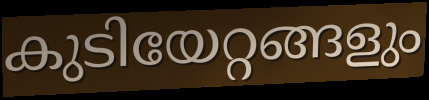
കുടിയേറ്റങ്ങളും